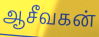
ஆசீவகன்